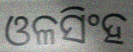
ଓଳସିଂହ